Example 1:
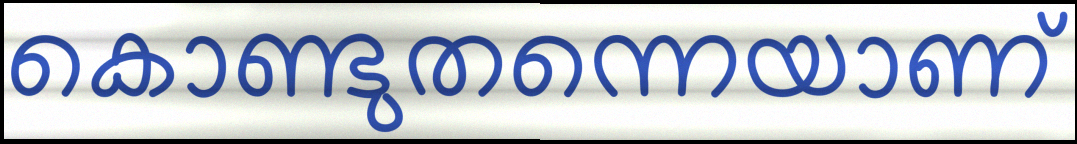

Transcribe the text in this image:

കൊണ്ടുതന്നെയാണ്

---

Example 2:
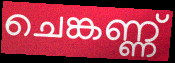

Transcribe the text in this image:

ചെങ്കണ്ണ്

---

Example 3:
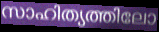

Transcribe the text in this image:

സാഹിത്യത്തിലോ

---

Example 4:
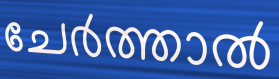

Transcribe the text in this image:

ചേർത്താൽ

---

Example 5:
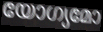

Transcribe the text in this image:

യോഗ്യമോ